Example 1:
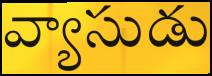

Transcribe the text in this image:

వ్యాసుడు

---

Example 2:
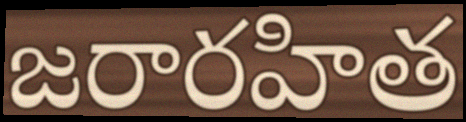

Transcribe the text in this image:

జరారహిత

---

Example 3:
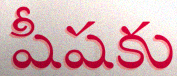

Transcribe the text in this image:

షీషకు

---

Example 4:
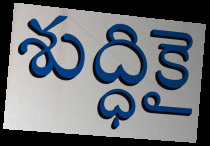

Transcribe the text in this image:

శుద్ధికై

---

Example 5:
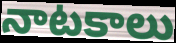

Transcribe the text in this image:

నాటకాలు